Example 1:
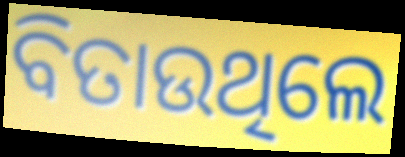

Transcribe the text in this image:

ବିତାଉଥିଲେ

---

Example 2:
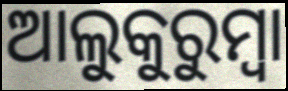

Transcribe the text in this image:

ଆଲୁକୁରୁମ୍ବା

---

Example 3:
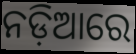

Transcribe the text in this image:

ନଡ଼ିଆରେ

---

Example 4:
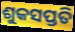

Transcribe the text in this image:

ଶୁକସପ୍ତତି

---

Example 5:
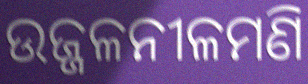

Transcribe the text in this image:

ଉଜ୍ଜଳନୀଳମଣି